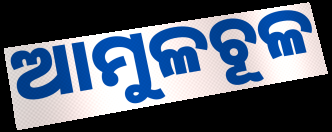
ଆମୁଳଚୂଳ